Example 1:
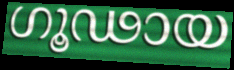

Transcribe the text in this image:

ഗൂഢായ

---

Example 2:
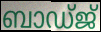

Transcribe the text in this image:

ബാഡ്ജ്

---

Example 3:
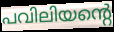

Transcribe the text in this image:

പവിലിയന്റെ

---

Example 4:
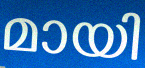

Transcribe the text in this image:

മായി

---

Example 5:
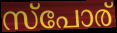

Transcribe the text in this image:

സ്പോര്